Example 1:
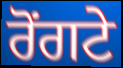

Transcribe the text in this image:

ਰੋੰਗਟੇ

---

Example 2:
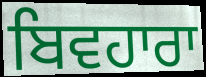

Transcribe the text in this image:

ਬਿਵਹਾਰਾ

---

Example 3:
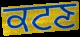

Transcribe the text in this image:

ਕਟਣ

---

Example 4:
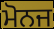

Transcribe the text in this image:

ਮੋਨਜ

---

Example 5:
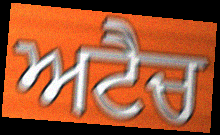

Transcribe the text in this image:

ਅਟੈਚ